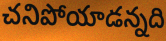
చనిపోయాడన్నది